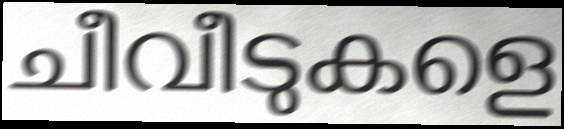
ചീവീടുകളെ